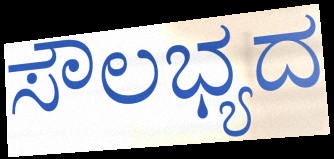
ಸೌಲಭ್ಯದ